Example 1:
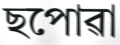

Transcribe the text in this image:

ছপোৱা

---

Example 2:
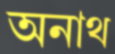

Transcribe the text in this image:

অনাথ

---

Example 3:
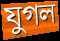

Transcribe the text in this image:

যুগল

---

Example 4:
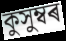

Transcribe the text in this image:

কুসুম্বৰ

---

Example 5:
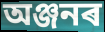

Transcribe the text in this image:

অঞ্জনৰ